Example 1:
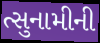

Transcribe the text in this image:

ત્સુનામીની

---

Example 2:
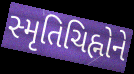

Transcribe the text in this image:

સ્મૃતિચિહ્નોને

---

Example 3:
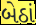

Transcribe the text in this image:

બેઠાં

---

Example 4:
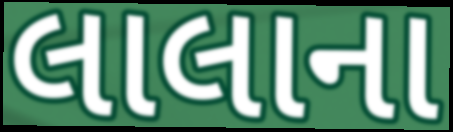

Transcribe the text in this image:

લાલાના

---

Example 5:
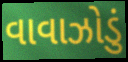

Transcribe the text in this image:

વાવાઝોડું